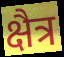
क्षैत्र